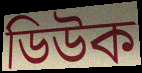
ডিউক